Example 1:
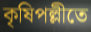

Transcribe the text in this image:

কৃষিপল্লীতে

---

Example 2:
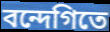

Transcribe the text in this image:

বন্দেগিতে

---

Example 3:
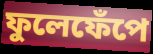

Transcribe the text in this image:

ফুলেফেঁপে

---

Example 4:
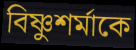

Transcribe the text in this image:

বিষ্ণুশর্মাকে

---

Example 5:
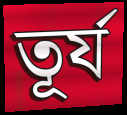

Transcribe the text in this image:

তূর্য